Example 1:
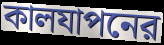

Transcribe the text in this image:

কালযাপনের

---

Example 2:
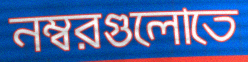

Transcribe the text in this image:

নম্বরগুলোতে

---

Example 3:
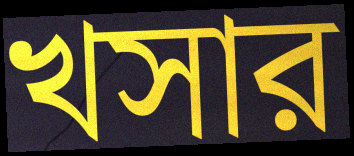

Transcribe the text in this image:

খসার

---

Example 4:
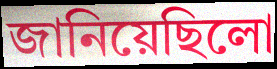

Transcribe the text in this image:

জানিয়েছিলো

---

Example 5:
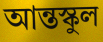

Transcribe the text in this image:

আন্তস্কুল